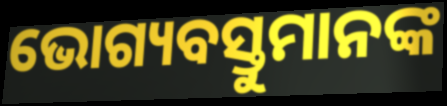
ଭୋଗ୍ୟବସ୍ତୁମାନଙ୍କ